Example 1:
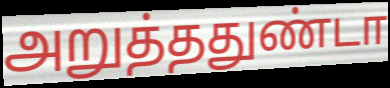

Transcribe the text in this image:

அறுத்ததுண்டா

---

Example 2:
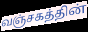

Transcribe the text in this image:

வஞ்சகத்தின்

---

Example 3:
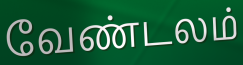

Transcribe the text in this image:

வேண்டலம்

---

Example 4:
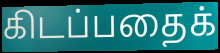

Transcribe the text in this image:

கிடப்பதைக்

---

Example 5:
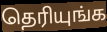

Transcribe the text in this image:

தெரியுங்க